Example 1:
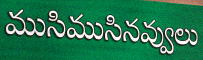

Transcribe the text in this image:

ముసిముసినవ్వులు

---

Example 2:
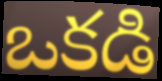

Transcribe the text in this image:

ఒకడి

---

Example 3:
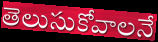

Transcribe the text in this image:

తెలుసుకోవాలనే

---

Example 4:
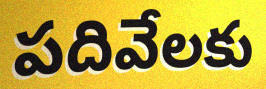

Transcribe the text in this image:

పదివేలకు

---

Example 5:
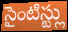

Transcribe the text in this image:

సైంటిస్ట్లు